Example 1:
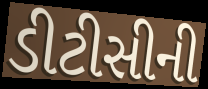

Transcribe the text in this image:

ડીટીસીની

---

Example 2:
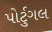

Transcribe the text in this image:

પોર્ટુગલ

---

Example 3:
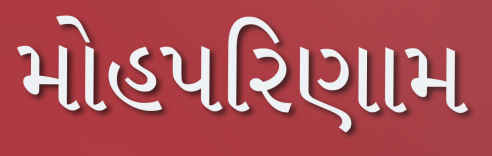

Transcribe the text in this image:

મોહપરિણામ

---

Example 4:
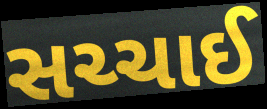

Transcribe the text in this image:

સચ્ચાઈ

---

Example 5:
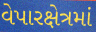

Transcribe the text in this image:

વેપારક્ષેત્રમાં